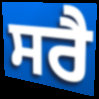
ਸਰੈ